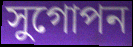
সুগোপন